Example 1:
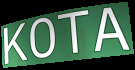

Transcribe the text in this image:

KOTA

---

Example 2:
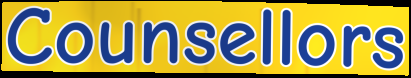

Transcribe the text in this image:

Counsellors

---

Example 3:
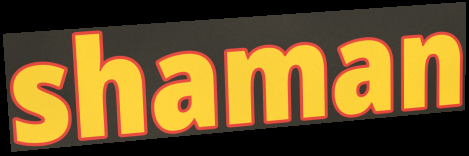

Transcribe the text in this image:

shaman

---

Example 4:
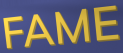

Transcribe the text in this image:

FAME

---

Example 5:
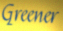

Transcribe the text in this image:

Greener